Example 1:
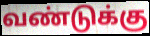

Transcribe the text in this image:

வண்டுக்கு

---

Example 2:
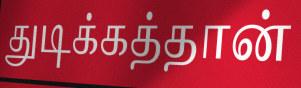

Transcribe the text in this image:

துடிக்கத்தான்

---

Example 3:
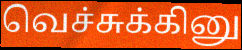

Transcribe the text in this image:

வெச்சுக்கினு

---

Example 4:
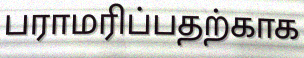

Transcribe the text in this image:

பராமரிப்பதற்காக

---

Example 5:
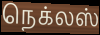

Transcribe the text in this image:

நெக்லஸ்